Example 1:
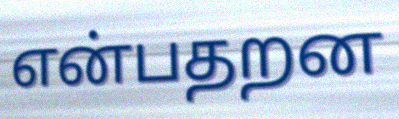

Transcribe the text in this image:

என்பதறன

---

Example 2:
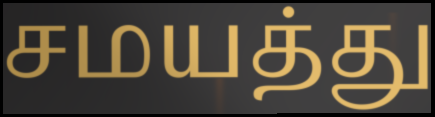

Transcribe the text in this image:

சமயத்து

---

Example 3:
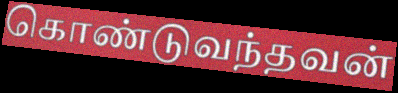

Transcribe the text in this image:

கொண்டுவந்தவன்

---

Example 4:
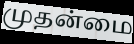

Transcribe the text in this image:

முதன்மை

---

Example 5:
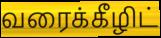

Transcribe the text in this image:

வரைக்கீழிட்